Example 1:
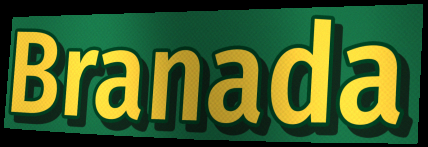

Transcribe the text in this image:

Branada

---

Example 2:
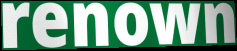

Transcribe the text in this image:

renown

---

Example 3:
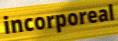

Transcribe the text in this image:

incorporeal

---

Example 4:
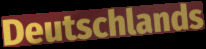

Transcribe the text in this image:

Deutschlands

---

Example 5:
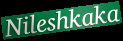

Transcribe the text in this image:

Nileshkaka